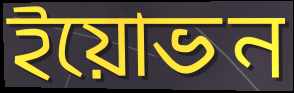
ইয়োভন